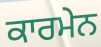
ਕਾਰਮੇਨ